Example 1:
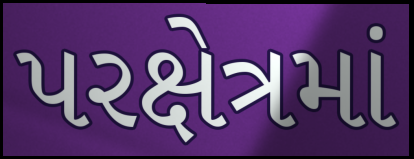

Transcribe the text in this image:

પરક્ષેત્રમાં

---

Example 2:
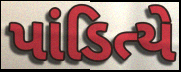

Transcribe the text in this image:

પાંડિત્યે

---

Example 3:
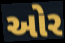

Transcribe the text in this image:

ઓર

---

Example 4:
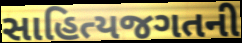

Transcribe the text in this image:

સાહિત્યજગતની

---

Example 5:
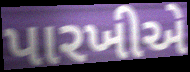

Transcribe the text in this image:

પારખીએ